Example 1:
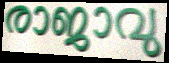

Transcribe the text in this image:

രാജാവു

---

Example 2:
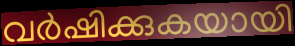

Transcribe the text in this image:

വർഷിക്കുകയായി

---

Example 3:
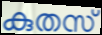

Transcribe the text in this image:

കുതസ്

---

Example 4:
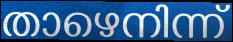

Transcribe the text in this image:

താഴെനിന്ന്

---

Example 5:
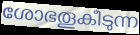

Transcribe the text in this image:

ശോഭതൂകീടുന്ന